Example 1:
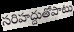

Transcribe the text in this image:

సరిహద్దుతోపాటు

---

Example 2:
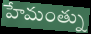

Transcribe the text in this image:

హేమంత్ను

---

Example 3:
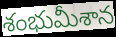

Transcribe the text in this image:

శంభుమీశాన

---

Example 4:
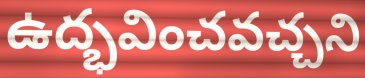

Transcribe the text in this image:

ఉద్భవించవచ్చని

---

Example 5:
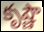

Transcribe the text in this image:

కృష్ణౌ